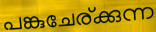
പങ്കുചേര്ക്കുന്ന